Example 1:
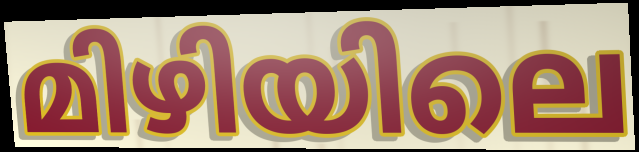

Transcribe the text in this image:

മിഴിയിലെ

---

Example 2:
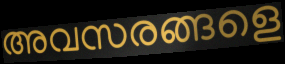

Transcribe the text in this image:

അവസരങ്ങളെ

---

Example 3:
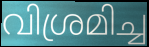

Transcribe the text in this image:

വിശ്രമിച്ച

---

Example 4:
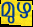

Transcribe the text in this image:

മുഴ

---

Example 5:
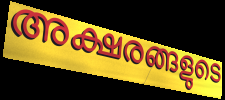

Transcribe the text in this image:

അക്ഷരങ്ങളുടെ